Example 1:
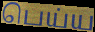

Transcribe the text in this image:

பெய்ய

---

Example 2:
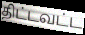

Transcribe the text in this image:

திட்டவட்ட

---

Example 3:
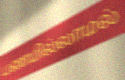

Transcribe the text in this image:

பணமில்லாமல்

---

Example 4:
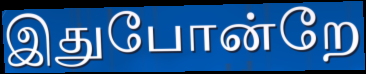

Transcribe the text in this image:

இதுபோன்றே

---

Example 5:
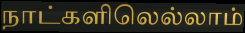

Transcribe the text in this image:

நாட்களிலெல்லாம்